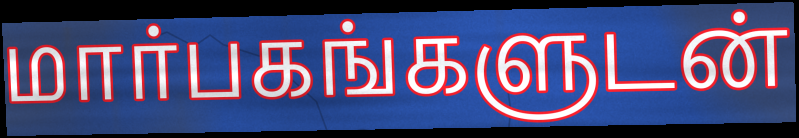
மார்பகங்களுடன்